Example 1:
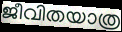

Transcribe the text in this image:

ജീവിതയാത്ര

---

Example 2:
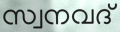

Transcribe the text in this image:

സ്വനവദ്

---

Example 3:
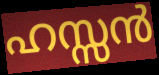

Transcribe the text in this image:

ഹസ്സൻ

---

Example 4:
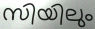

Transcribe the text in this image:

സിയിലും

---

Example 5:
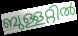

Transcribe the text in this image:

ബുള്ളറ്റിൽ